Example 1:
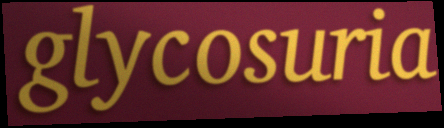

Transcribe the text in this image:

glycosuria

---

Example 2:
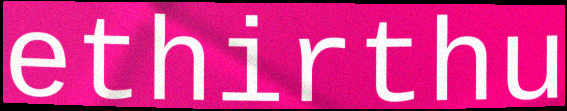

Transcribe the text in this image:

ethirthu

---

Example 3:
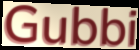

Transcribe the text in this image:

Gubbi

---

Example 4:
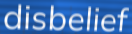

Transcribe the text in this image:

disbelief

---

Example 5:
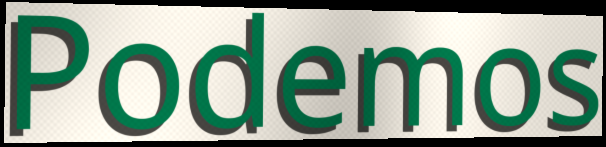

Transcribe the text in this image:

Podemos